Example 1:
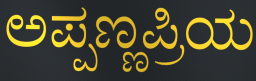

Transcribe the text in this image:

ಅಪ್ಪಣ್ಣಪ್ರಿಯ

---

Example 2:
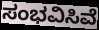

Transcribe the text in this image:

ಸಂಭವಿಸಿವೆ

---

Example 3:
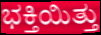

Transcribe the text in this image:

ಭಕ್ತಿಯಿತ್ತು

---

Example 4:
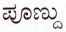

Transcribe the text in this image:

ಪೂಣ್ದು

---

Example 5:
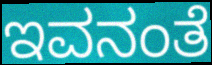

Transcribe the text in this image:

ಇವನಂತೆ